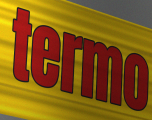
termo